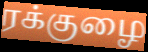
ரக்குழை